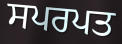
ਸਪਰਪਤ